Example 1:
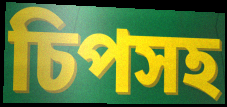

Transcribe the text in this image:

চিপসহ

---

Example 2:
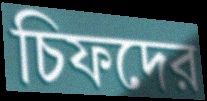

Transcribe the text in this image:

চিফদের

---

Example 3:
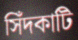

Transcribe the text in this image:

সিঁদকাটি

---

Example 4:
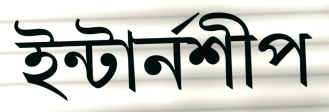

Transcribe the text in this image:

ইন্টার্নশীপ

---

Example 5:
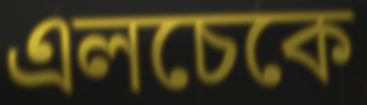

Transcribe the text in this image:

এলচেকে